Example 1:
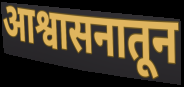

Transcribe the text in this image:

आश्वासनातून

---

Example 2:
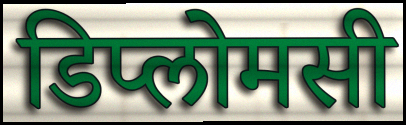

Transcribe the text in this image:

डिप्लोमसी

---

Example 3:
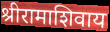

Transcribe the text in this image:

श्रीरामाशिवाय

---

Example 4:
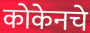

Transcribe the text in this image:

कोकेनचे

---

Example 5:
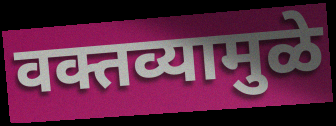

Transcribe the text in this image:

वक्तव्यामुळे